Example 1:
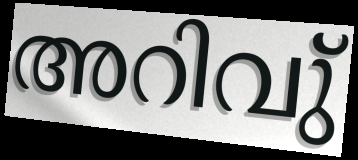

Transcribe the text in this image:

അറിവു്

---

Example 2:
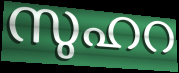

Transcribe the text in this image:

സുഹറ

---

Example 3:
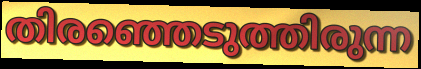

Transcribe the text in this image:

തിരഞ്ഞെടുത്തിരുന്ന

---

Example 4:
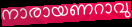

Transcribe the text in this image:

നാരായണറാവു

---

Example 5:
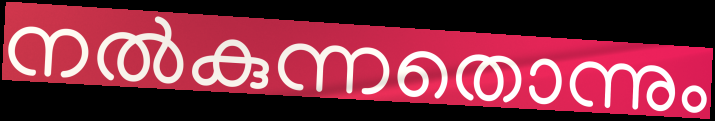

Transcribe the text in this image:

നൽകുന്നതൊന്നും